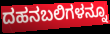
ದಹನಬಲಿಗಳನ್ನೂ